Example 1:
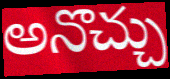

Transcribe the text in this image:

అనొచ్చు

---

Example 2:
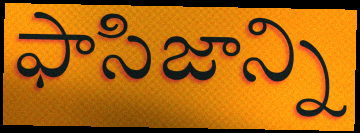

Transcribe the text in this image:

ఫాసిజాన్ని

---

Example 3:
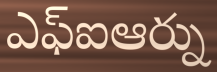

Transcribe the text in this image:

ఎఫ్ఐఆర్ను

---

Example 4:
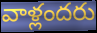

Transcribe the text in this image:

వాళ్లందరు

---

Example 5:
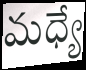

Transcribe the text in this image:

మధ్యే